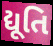
દ્યૂતિ